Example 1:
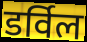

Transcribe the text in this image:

डर्विल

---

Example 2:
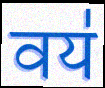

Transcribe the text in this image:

वय॑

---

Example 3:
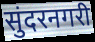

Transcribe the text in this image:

सुंदरनगरी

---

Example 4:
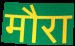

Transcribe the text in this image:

मौरा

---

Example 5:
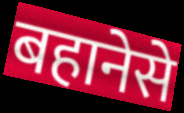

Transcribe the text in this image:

बहानेसे